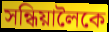
সন্ধিয়ালৈকে